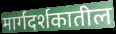
मार्गदर्शकातील